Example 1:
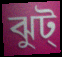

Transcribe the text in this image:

ঝুট্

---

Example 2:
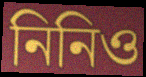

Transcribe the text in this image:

নিনিও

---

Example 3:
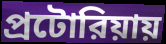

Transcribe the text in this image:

প্রটোরিয়ায়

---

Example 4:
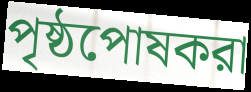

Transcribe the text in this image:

পৃষ্ঠপোষকরা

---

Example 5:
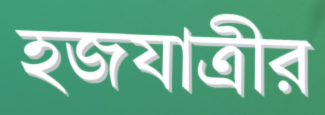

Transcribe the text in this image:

হজযাত্রীর